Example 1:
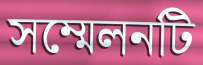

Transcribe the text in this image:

সম্মেলনটি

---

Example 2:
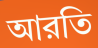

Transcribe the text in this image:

আরতি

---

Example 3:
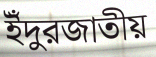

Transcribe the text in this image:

ইঁদুরজাতীয়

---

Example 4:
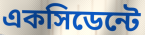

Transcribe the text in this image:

একসিডেন্টে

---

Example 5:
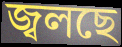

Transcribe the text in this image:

জ্বলছে